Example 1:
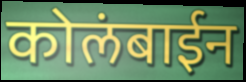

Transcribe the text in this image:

कोलंबाईन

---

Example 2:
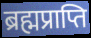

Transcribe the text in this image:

ब्रह्मप्राप्ति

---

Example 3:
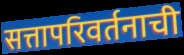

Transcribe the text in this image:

सत्तापरिवर्तनाची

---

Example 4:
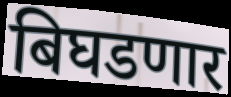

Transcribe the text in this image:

बिघडणार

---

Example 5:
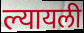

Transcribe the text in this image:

ल्यायली